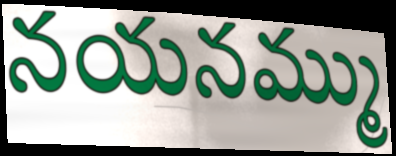
నయనమ్ము